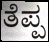
ತೆಪ್ಪ